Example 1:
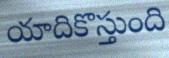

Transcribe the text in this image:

యాదికొస్తుంది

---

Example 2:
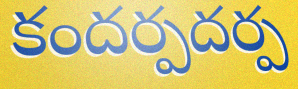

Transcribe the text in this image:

కందర్పదర్ప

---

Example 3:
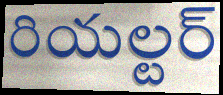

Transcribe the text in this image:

రియల్టర్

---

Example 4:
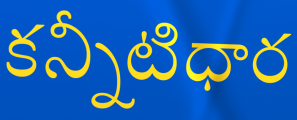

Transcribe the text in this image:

కన్నీటిధార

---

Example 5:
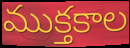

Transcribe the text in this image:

ముక్తకాల